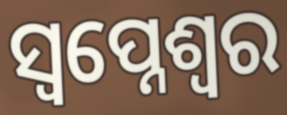
ସ୍ଵପ୍ନେଶ୍ଵର